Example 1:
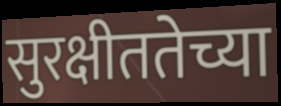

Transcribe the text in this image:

सुरक्षीततेच्या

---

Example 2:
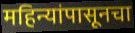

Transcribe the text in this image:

महिन्यांपासूनचा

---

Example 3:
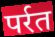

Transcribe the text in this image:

पर्रत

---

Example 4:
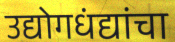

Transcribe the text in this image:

उद्योगधंद्यांचा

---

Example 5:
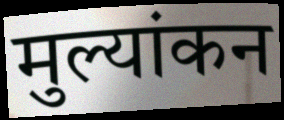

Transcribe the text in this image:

मुल्यांकन